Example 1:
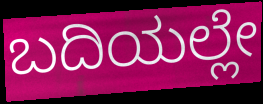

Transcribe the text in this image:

ಬದಿಯಲ್ಲೇ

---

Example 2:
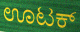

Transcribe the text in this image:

ಊಟಕ್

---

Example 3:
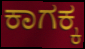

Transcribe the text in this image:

ಕಾಗಕ್ಕ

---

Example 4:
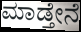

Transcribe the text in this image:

ಮಾಡ್ತೇನೆ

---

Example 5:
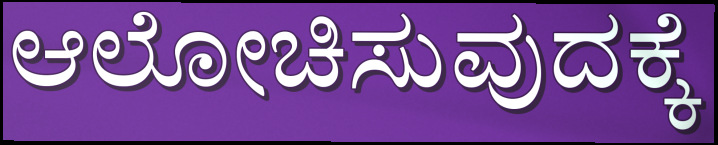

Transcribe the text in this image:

ಆಲೋಚಿಸುವುದಕ್ಕೆ